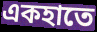
একহাতে